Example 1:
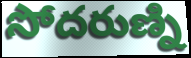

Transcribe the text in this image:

సోదరుణ్ని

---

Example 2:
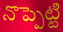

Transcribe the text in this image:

నొప్పెట్టి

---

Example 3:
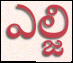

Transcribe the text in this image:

ఎల్జి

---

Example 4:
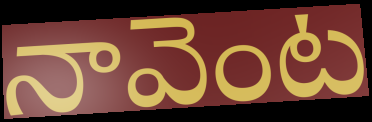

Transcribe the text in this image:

నావెంట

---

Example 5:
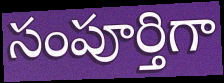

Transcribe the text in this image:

సంపూర్తిగా